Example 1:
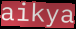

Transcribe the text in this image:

aikya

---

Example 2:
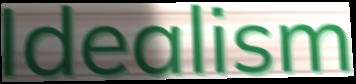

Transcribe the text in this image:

Idealism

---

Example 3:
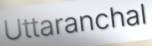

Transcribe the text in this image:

Uttaranchal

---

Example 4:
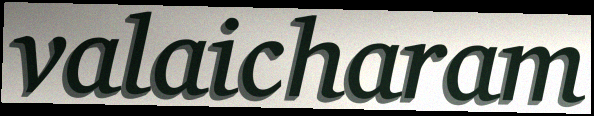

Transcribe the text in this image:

valaicharam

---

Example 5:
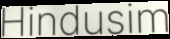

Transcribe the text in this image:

Hindusim